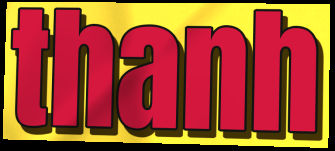
thanh